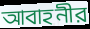
আবাহনীর